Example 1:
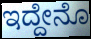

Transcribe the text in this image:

ಇದ್ದೇನೊ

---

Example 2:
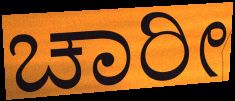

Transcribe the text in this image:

ಚಾರೀ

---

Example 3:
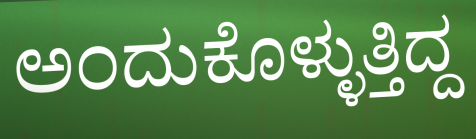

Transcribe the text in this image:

ಅಂದುಕೊಳ್ಳುತ್ತಿದ್ದ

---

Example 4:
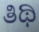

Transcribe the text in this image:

ತಿಥಿ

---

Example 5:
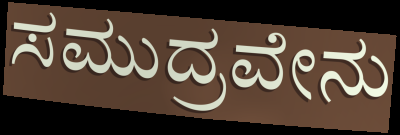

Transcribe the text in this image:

ಸಮುದ್ರವೇನು